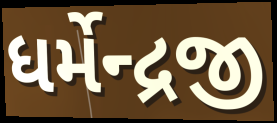
ધર્મેન્દ્રજી